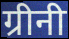
ग्रीनी